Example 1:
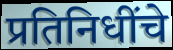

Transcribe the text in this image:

प्रतिनिधींचे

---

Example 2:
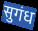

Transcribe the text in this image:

सुगंध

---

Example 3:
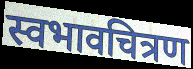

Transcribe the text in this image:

स्वभावचित्रण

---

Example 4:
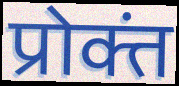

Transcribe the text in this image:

प्रोक्तं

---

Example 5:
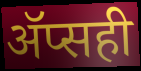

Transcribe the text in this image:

ॲप्सही